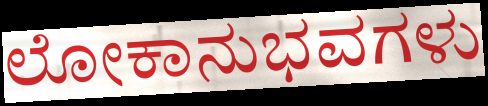
ಲೋಕಾನುಭವಗಳು